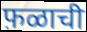
फ़ळाची